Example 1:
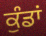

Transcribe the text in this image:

ਕੁੰਡਾਂ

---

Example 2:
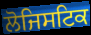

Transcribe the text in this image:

ਲੋਜਿਸਟਿਕ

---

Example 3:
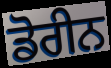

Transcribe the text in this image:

ਡੋਰੀਨ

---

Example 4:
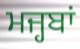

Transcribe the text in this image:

ਮਜ੍ਹਬਾਂ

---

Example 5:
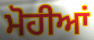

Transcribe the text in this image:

ਮੋਹੀਆਂ